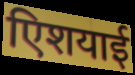
एिशयाई